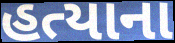
હત્યાના